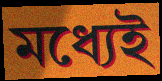
মধ্যেই